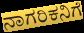
ನಾಗರಿಕನಿಗೆ